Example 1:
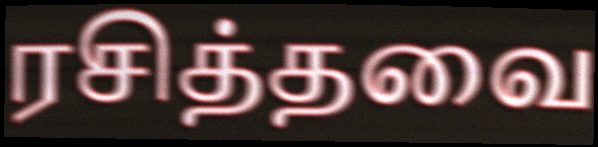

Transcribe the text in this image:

ரசித்தவை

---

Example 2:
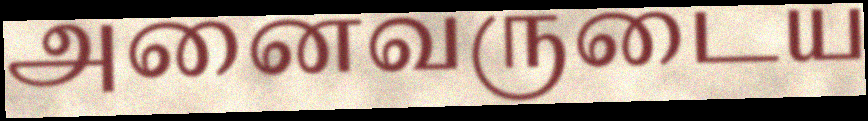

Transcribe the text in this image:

அனைவருடைய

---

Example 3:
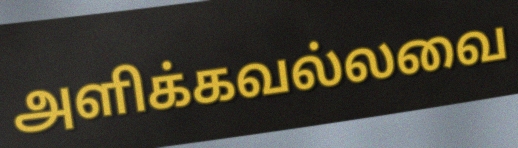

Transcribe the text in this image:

அளிக்கவல்லவை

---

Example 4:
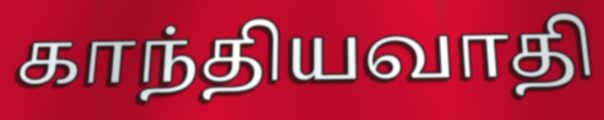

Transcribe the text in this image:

காந்தியவாதி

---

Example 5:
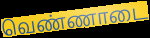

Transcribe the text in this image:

வெண்ணாடை